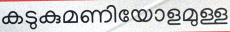
കടുകുമണിയോളമുള്ള